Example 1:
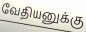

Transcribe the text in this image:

வேதியனுக்கு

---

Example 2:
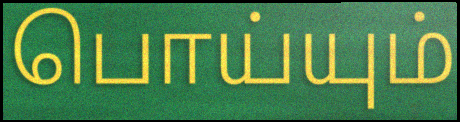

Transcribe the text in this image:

பொய்யும்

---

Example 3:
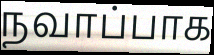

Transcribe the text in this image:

நவாப்பாக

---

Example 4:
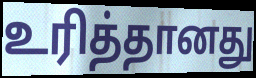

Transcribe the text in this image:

உரித்தானது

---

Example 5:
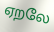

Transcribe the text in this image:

ஏறலே